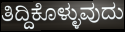
ತಿದ್ದಿಕೊಳ್ಳುವುದು